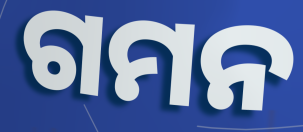
ଗମନ